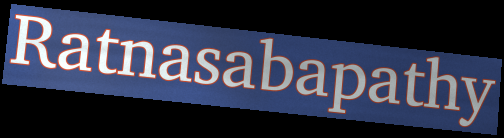
Ratnasabapathy